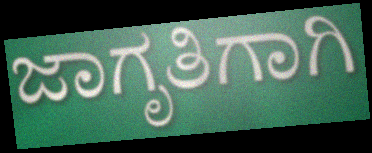
ಜಾಗೃತಿಗಾಗಿ